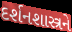
દર્શનશાસ્ત્રને